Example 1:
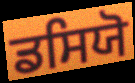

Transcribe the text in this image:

ਡਸਿਯੋ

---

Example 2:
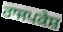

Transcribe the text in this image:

ਰਾਜਪਕੇਸ਼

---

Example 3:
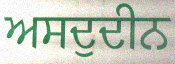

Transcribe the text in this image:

ਅਸਦੁਦੀਨ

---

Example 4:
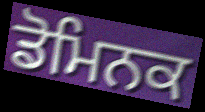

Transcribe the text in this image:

ਡੋਮਿਨਕ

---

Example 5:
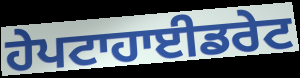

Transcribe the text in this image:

ਹੇਪਟਾਹਾਈਡਰੇਟ